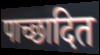
पाच्छादित